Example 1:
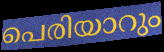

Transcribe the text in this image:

പെരിയാറും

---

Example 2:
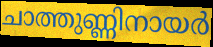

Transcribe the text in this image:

ചാത്തുണ്ണിനായർ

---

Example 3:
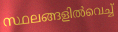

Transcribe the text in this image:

സ്ഥലങ്ങളിൽവെച്ച്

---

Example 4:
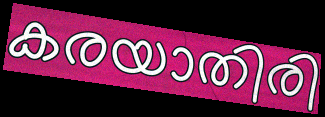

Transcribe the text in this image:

കരയാതിരി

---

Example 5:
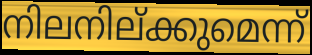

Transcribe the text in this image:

നിലനില്ക്കുമെന്ന്